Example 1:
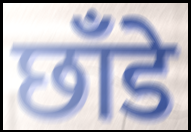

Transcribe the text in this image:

छाँडे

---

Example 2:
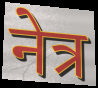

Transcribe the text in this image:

नेत्र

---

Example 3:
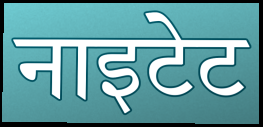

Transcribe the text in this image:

नाइटेट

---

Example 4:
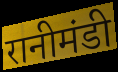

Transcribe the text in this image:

रानीमंडी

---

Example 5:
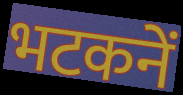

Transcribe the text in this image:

भटकनें